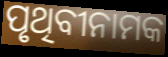
ପୃଥିବୀନାମକ